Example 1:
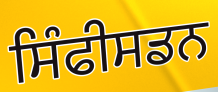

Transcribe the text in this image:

ਸਿੰਫੀਸਡਨ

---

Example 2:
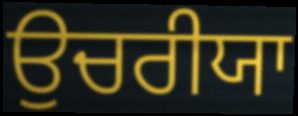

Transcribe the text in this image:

ਉਚਰੀਯਾ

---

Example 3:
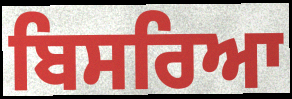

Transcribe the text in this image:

ਬਿਸਰਿਆ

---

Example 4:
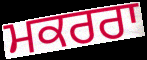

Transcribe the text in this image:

ਮਕਰਰਾ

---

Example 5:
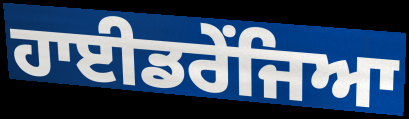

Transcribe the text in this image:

ਹਾਈਡਰੇਂਜਿਆ